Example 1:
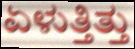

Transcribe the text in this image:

ಏಳುತ್ತಿತ್ತು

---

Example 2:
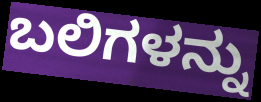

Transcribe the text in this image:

ಬಲಿಗಳನ್ನು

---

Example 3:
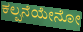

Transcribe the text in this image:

ಕಲ್ಪನೆಯೇನೋ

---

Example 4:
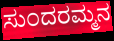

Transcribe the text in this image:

ಸುಂದರಮ್ಮನ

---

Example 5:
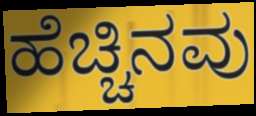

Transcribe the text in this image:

ಹೆಚ್ಚಿನವು